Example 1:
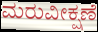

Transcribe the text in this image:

ಮರುವೀಕ್ಷಣೆ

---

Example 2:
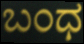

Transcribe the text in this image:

ಬಂಧ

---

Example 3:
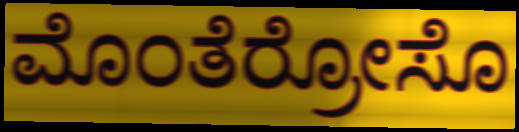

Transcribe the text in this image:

ಮೊಂತೆರ್ರೋಸೊ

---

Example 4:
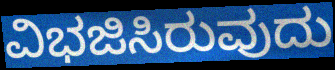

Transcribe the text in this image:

ವಿಭಜಿಸಿರುವುದು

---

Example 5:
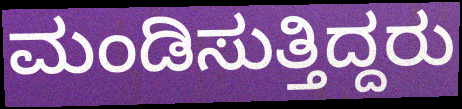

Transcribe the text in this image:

ಮಂಡಿಸುತ್ತಿದ್ದರು